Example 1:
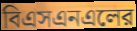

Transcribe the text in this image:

বিএসএনএলের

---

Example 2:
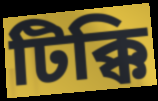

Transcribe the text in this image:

টিক্কি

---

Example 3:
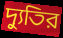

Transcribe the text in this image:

দ্যুতির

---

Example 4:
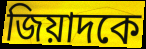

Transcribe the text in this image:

জিয়াদকে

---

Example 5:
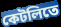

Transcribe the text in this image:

কেটলিতে